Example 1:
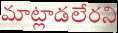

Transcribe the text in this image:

మాట్లాడలేరని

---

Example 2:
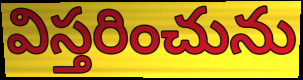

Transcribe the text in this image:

విస్తరించును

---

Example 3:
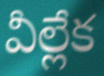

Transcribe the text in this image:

వీల్లేక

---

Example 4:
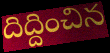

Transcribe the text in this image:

దిద్దించిన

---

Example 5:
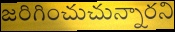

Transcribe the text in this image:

జరిగించుచున్నారని